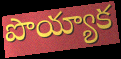
పొయ్యాక